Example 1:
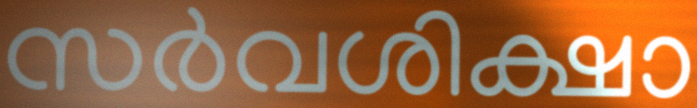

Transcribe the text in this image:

സർവശിക്ഷാ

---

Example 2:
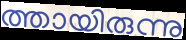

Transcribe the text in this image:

ത്തായിരുന്നു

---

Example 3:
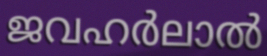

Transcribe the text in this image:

ജവഹർലാൽ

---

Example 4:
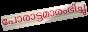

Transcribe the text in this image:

പോരാട്ടമാരംഭിച്ചു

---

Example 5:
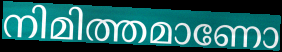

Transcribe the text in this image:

നിമിത്തമാണോ